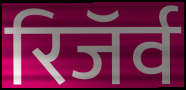
रिजॅर्व